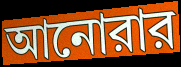
আনোরার